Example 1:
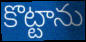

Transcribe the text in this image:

కొట్టాను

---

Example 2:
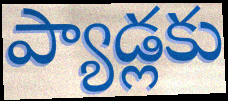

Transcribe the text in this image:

ప్యాడ్లకు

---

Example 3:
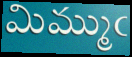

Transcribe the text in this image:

మిమ్ముఁ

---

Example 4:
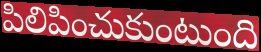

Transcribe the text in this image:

పిలిపించుకుంటుంది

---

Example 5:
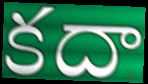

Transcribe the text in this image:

కదా